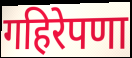
गहिरेपणा